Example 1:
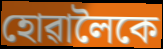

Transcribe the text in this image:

হোৱালৈকে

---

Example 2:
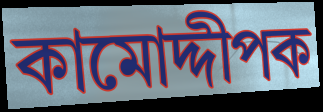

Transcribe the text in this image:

কামোদ্দীপক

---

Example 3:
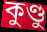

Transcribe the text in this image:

কুণ্ডু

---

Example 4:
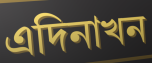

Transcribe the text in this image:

এদিনাখন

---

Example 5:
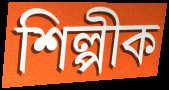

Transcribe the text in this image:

শিল্পীক